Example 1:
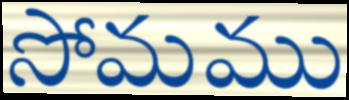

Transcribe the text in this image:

సోమము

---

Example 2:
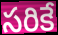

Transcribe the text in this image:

సరికే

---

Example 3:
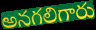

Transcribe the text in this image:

అనగలిగారు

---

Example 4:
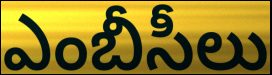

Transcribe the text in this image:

ఎంబీసీలు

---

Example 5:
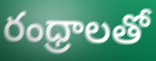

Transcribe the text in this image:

రంధ్రాలతో